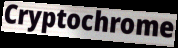
Cryptochrome